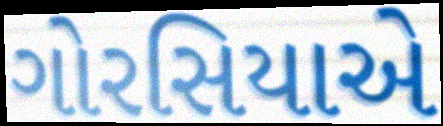
ગોરસિયાએ